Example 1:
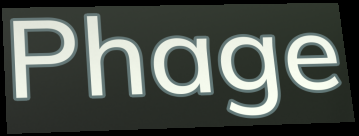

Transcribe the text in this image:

Phage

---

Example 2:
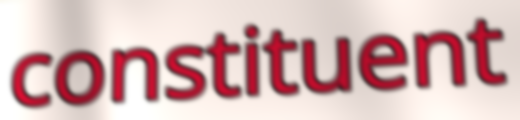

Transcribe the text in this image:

constituent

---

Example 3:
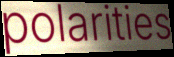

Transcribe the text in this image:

polarities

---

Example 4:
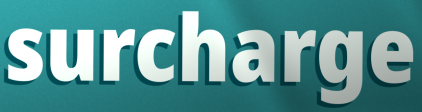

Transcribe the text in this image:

surcharge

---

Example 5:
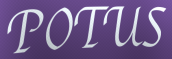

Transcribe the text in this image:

POTUS